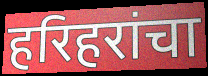
हरिहरांचा